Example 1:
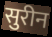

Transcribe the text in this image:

सुरीन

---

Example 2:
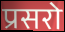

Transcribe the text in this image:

प्रसरो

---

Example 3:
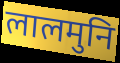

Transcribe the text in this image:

लालमुनि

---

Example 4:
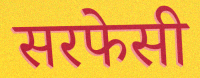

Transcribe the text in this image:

सरफेसी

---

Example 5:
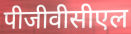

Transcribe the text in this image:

पीजीवीसीएल